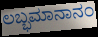
ಲಬ್ಭಮಾನಾನಂ